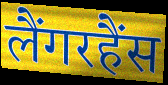
लैंगरहैंस